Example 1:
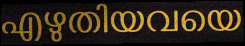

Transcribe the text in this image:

എഴുതിയവയെ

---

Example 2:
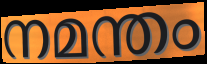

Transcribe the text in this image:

നമന്തം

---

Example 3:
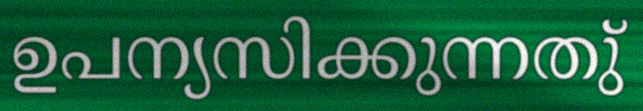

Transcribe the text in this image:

ഉപന്യസിക്കുന്നതു്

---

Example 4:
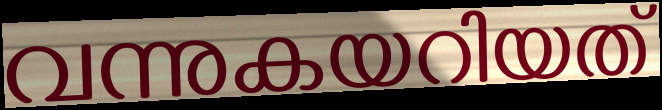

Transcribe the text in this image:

വന്നുകയറിയത്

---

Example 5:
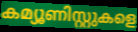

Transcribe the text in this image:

കമ്യൂണിസ്റ്റുകളെ